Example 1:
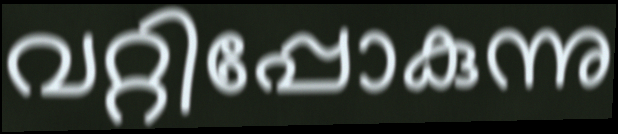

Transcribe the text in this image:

വറ്റിപ്പോകുന്നു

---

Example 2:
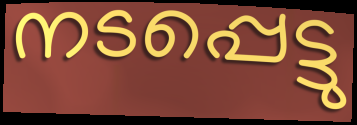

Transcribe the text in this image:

നടപ്പെട്ടു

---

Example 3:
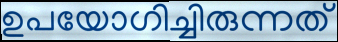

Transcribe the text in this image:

ഉപയോഗിച്ചിരുന്നത്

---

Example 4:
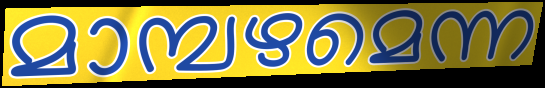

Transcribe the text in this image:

മാമ്പഴമെന്ന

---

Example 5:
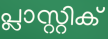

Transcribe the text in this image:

പ്ലാസ്റ്റിക്